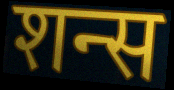
शन्स